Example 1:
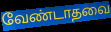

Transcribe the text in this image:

வேண்டாதவை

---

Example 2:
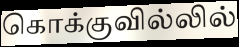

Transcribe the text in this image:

கொக்குவில்லில்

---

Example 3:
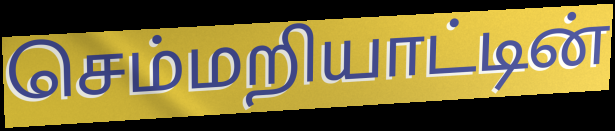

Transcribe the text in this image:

செம்மறியாட்டின்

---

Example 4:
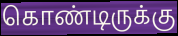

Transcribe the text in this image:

கொண்டிருக்கு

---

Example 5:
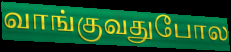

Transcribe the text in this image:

வாங்குவதுபோல